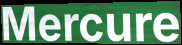
Mercure